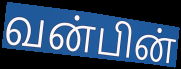
வன்பின்